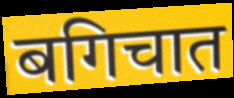
बगिचात